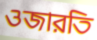
ওজারতি